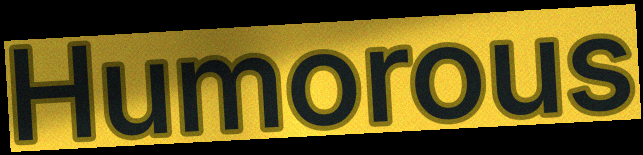
Humorous